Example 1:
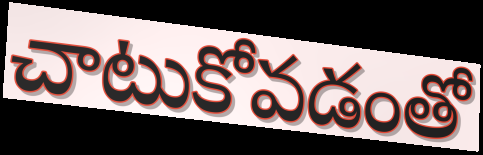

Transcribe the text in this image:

చాటుకోవడంతో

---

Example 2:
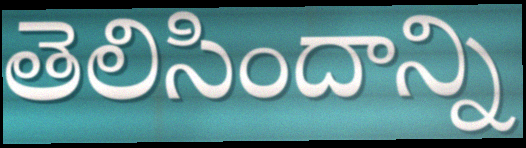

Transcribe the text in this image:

తెలిసిందాన్ని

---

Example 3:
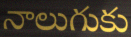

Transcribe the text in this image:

నాలుగుకు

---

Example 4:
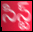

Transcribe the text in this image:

సిస్ట్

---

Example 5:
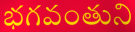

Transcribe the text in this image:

భగవంతుని